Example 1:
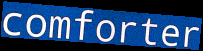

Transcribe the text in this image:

comforter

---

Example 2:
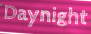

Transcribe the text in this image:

Daynight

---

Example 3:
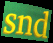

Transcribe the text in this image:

snd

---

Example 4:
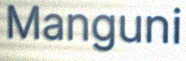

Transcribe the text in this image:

Manguni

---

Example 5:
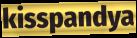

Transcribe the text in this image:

kisspandya